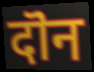
दॊन